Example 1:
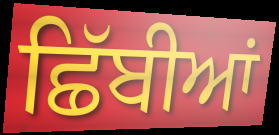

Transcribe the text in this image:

ਛਿੱਬੀਆਂ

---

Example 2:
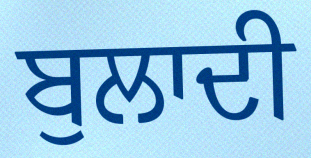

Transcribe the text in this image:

ਬੁਲਾਦੀ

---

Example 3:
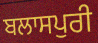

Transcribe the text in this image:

ਬਲਾਸਪੁਰੀ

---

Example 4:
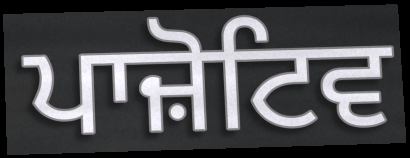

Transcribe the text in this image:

ਪਾਜ਼ੋਟਿਵ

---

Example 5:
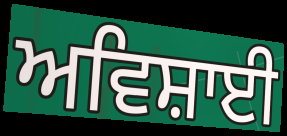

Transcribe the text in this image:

ਅਵਿਸ਼ਾਈ